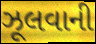
ઝૂલવાની